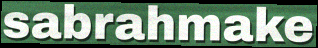
sabrahmake